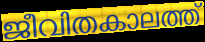
ജീവിതകാലത്ത്